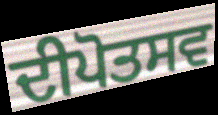
ਦੀਪੋਤਸਵ